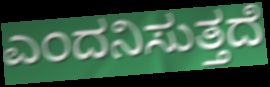
ಎಂದನಿಸುತ್ತದೆ